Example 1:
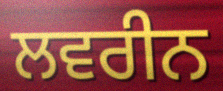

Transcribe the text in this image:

ਲਵਰੀਨ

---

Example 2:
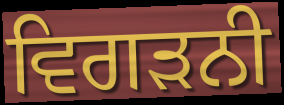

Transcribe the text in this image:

ਵਿਗੜਨੀ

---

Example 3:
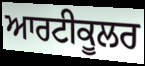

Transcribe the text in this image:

ਆਰਟੀਕੂਲਰ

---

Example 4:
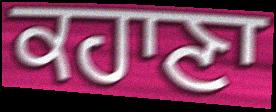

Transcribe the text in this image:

ਕਹਾਣਾ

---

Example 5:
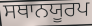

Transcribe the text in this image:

ਸਥਾਨਯੂਰਪ